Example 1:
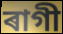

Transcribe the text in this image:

ৰাগী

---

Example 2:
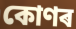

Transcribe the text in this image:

কোণৰ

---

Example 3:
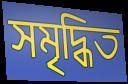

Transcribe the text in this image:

সমৃদ্ধিত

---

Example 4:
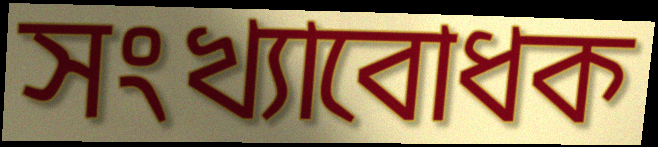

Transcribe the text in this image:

সংখ্যাবোধক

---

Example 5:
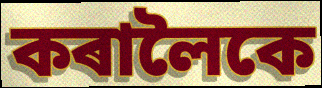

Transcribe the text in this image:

কৰালৈকে